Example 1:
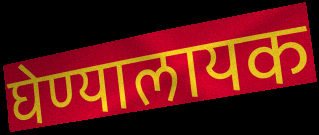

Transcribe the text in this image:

घेण्यालायक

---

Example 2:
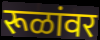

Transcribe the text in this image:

रूळांवर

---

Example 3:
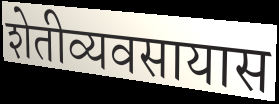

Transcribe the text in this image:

शेतीव्यवसायास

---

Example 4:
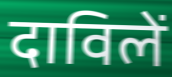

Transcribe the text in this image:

दाविलें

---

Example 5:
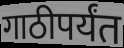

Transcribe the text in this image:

गाठीपर्यंत